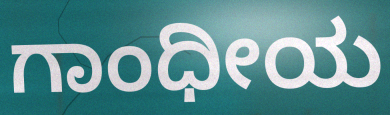
ಗಾಂಧೀಯ